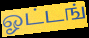
ஓட்டங்